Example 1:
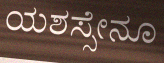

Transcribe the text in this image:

ಯಶಸ್ಸೇನೂ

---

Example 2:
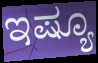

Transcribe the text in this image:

ಇಷ್ಯೂ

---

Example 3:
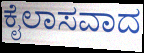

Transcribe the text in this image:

ಕೈಲಾಸವಾದ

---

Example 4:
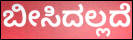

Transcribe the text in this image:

ಬೀಸಿದಲ್ಲದೆ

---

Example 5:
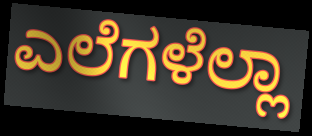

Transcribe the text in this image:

ಎಲೆಗಳೆಲ್ಲಾ